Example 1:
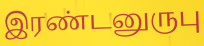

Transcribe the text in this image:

இரண்டனுருபு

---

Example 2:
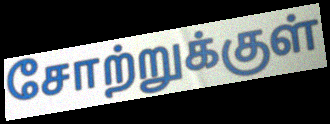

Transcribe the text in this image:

சோற்றுக்குள்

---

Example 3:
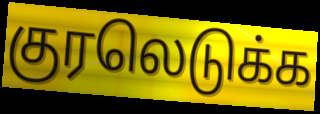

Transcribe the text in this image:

குரலெடுக்க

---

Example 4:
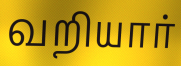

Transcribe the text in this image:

வறியார்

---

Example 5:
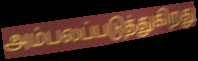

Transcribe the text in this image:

அம்பலப்படுத்துகிறது